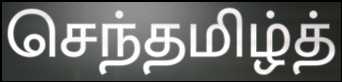
செந்தமிழ்த்